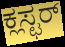
ಕ್ಲಸ್ಟರ್